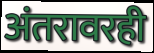
अंतरावरही